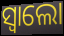
ସ୍ବାଲୋ